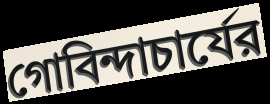
গোবিন্দাচার্যের